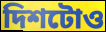
দিশটোও